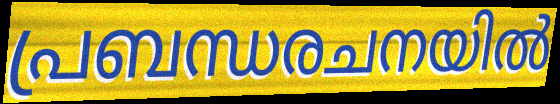
പ്രബന്ധരചനയിൽ